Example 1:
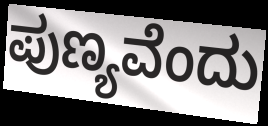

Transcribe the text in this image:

ಪುಣ್ಯವೆಂದು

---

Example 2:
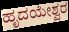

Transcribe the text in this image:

ಹೃದಯೇಶ್ವರ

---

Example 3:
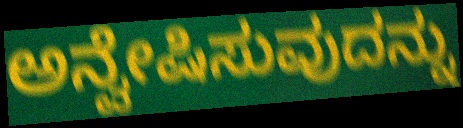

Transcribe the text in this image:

ಅನ್ವೇಷಿಸುವುದನ್ನು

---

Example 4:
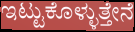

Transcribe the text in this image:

ಇಟ್ಟುಕೊಳ್ಳುತ್ತೇನೆ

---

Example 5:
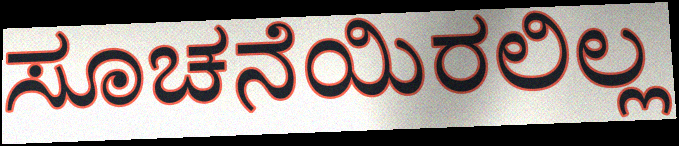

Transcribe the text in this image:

ಸೂಚನೆಯಿರಲಿಲ್ಲ